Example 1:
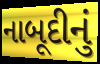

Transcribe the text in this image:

નાબૂદીનું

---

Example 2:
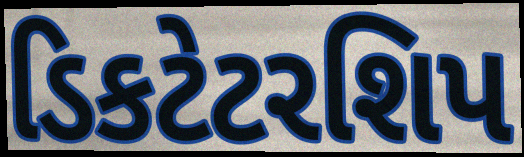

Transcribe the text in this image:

ડિકટેટરશિપ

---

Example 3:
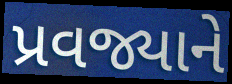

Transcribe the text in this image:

પ્રવજ્યાને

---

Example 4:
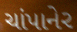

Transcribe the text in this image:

ચાંપાનેર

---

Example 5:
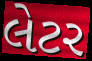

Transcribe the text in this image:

લેટર